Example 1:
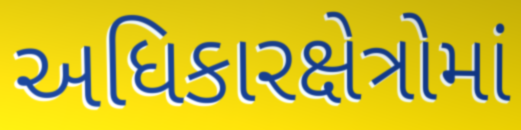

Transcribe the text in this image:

અધિકારક્ષેત્રોમાં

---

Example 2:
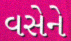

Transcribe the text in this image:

વસેને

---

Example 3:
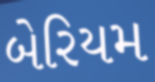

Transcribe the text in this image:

બેરિયમ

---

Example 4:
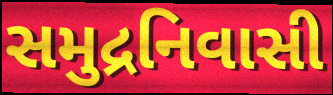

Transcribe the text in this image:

સમુદ્રનિવાસી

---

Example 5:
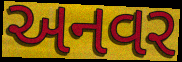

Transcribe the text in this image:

અનવર